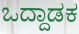
ಒದ್ದಾಡಕ